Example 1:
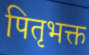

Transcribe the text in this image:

पितृभक्त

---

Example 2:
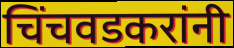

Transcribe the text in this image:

चिंचवडकरांनी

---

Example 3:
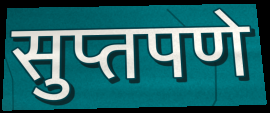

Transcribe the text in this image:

सुप्तपणे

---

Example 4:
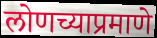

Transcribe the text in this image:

लोणच्याप्रमाणे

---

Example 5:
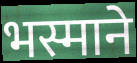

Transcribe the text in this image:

भस्माने